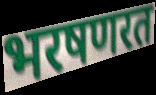
भरषणरत